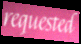
requested